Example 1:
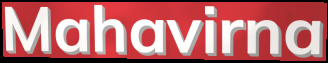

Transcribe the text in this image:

Mahavirna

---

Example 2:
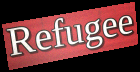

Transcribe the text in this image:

Refugee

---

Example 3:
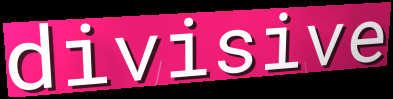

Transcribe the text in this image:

divisive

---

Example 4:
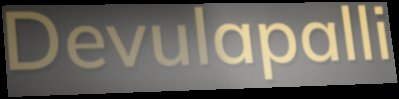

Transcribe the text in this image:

Devulapalli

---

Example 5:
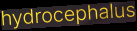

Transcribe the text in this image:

hydrocephalus